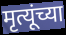
मृत्यूंच्या